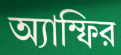
অ্যাম্ফির